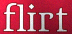
flirt